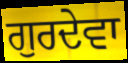
ਗੁਰਦੇਵਾ